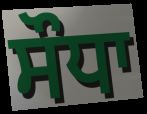
ਸੌਧਾ